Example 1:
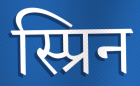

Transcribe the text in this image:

स्प्रिन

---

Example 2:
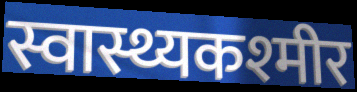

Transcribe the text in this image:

स्वास्थ्यकश्‍मीर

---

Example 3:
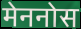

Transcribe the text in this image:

मेननोस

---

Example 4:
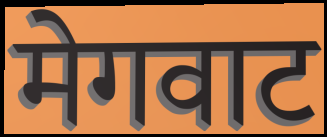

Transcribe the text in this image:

मेगवाट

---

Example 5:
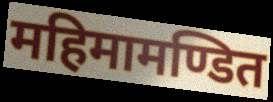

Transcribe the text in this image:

महिमामण्डित